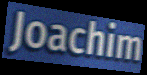
Joachim